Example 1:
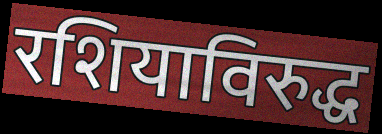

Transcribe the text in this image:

रशियाविरुद्ध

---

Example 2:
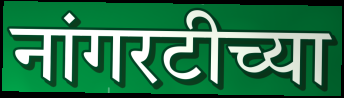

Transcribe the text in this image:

नांगरटीच्या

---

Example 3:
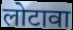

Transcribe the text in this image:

लोटावा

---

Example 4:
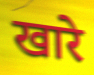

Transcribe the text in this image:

खारे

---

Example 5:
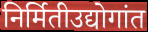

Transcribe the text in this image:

निर्मितीउद्योगांत